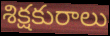
శిక్షకురాలు